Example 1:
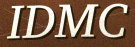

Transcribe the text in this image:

IDMC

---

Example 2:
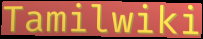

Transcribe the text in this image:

Tamilwiki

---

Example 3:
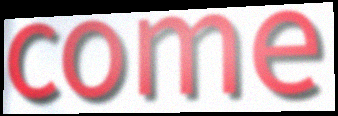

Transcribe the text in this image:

come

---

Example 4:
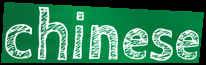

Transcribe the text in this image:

chinese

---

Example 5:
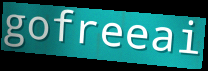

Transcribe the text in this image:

gofreeai